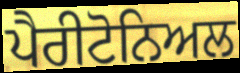
ਪੈਰੀਟੋਨਿਅਲ